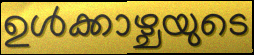
ഉൾക്കാഴ്ചയുടെ